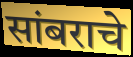
सांबराचे